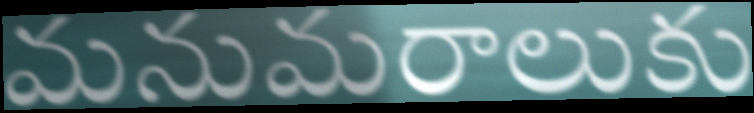
మనుమరాలుకు